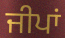
ਜੀਪਾਂ